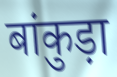
बांकुड़ा